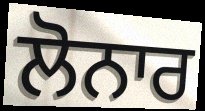
ਲੋਨਾਰ